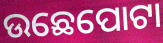
ଉଛେପୋଟା